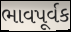
ભાવપૂર્વક